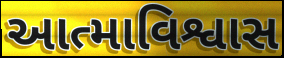
આત્માવિશ્વાસ